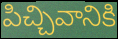
పిచ్చివానికి